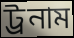
ট্রনাম